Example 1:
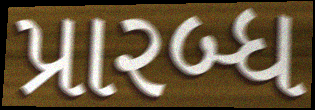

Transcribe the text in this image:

પ્રારબ્ધ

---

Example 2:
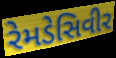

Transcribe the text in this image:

રેમડેસિવીર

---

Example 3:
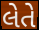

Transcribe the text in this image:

લેતે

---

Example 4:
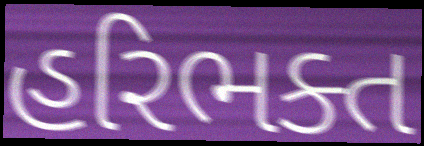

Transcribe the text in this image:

હરિભક્ત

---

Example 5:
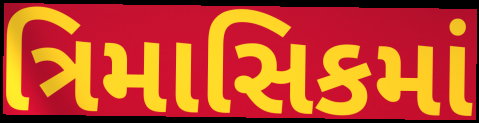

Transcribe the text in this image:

ત્રિમાસિકમાં